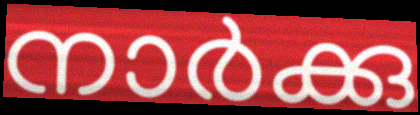
നാർക്കു